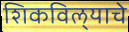
शिकविल्याचे